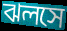
ঝলসে